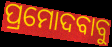
ପ୍ରମୋଦବାବୁ